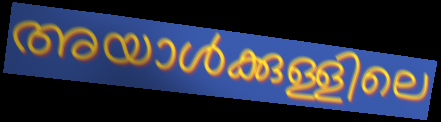
അയാൾക്കുള്ളിലെ